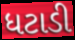
ધટાડી